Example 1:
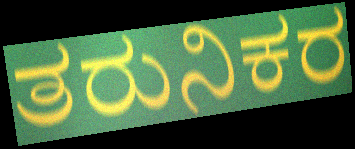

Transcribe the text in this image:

ತರುನಿಕರ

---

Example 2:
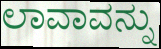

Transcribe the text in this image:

ಲಾವಾವನ್ನು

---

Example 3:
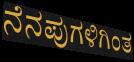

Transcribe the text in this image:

ನೆನಪುಗಳಿಗಿಂತ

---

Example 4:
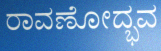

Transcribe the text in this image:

ರಾವಣೋದ್ಭವ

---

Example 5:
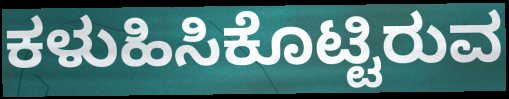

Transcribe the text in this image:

ಕಳುಹಿಸಿಕೊಟ್ಟಿರುವ